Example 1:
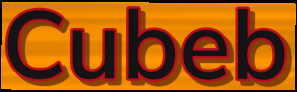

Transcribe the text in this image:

Cubeb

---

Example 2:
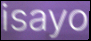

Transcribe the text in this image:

isayo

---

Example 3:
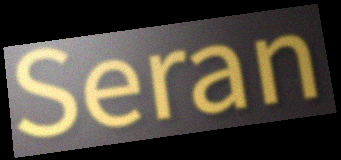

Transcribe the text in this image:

Seran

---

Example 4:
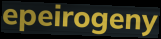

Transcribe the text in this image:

epeirogeny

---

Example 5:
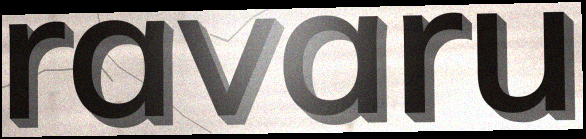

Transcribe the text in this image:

ravaru